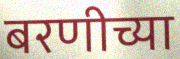
बरणीच्या